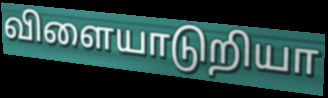
விளையாடுறியா